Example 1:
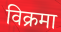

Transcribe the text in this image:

विक्रमा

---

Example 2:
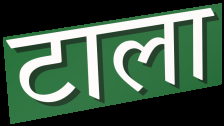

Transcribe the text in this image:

टाला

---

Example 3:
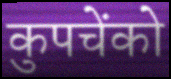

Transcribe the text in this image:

कुपचेंको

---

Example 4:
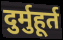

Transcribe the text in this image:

दुर्मुहूर्त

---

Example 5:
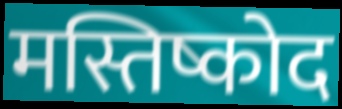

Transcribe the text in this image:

मस्तिष्कोद